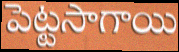
పెట్టసాగాయి